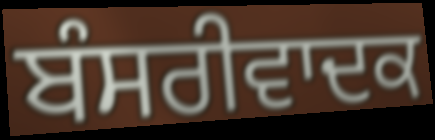
ਬੰਸਰੀਵਾਦਕ